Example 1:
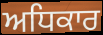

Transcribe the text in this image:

ਅਧਿਕਾਰ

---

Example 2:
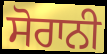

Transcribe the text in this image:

ਸੋਰਾਨੀ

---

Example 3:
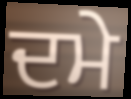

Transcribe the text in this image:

ਦਮੇ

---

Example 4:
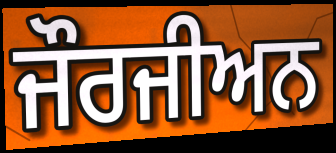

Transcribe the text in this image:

ਜੌਰਜੀਅਨ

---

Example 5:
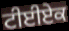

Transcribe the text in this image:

ਟੀਈਏਕ